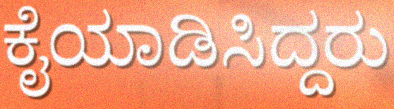
ಕೈಯಾಡಿಸಿದ್ದರು